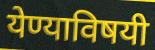
येण्याविषयी